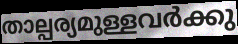
താല്പര്യമുള്ളവർക്കു